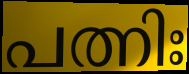
പത്നിഃ